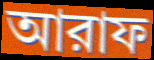
আরাফ